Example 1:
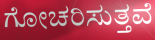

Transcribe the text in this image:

ಗೋಚರಿಸುತ್ತವೆ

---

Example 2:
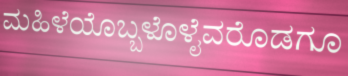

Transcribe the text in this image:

ಮಹಿಳೆಯೊಬ್ಬಳೊಳೈವರೊಡಗೂ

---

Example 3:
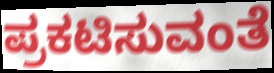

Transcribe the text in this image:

ಪ್ರಕಟಿಸುವಂತೆ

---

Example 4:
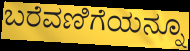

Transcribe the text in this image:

ಬರೆವಣಿಗೆಯನ್ನೂ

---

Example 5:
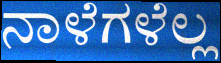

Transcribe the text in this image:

ನಾಳೆಗಳೆಲ್ಲ